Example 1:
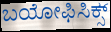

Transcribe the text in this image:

ಬಯೋಫಿಸಿಕ್ಸ್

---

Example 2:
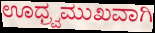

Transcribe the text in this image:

ಊಧ್ರ್ವಮುಖವಾಗಿ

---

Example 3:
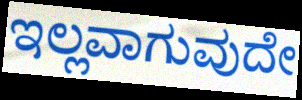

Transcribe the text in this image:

ಇಲ್ಲವಾಗುವುದೇ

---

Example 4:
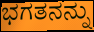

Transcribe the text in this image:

ಭಗತನನ್ನು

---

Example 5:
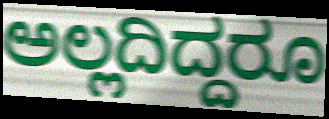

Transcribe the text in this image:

ಅಲ್ಲದಿದ್ದರೂ